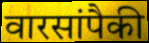
वारसांपैकी